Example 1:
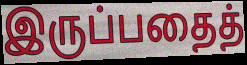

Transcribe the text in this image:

இருப்பதைத்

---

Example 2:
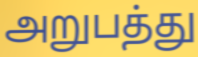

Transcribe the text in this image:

அறுபத்து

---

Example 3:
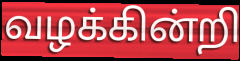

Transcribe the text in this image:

வழக்கின்றி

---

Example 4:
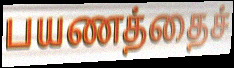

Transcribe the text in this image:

பயணத்தைச்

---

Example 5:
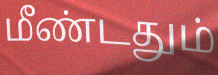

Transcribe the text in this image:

மீண்டதும்